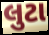
લુટા